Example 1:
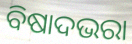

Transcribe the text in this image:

ବିଷାଦଭରା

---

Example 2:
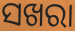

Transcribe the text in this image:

ସଖରା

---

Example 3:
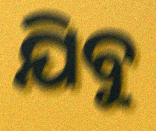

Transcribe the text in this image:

ଯିବୁ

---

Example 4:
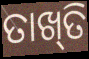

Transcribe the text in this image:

ତାଖ୍‍ତି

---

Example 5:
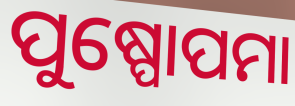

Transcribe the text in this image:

ପୁଷ୍ପୋପମା